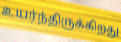
உயர்ந்திருக்கிறது